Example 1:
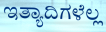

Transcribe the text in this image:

ಇತ್ಯಾದಿಗಳೆಲ್ಲ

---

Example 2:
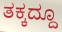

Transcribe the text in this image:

ತಕ್ಕದ್ದೂ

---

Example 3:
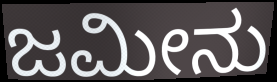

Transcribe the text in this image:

ಜಮೀನು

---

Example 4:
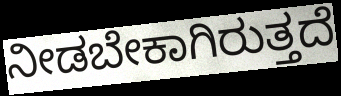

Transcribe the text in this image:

ನೀಡಬೇಕಾಗಿರುತ್ತದೆ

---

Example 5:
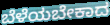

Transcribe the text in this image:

ಬೆಳೆಯಬೇಕಾದ